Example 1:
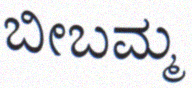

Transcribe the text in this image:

ಬೀಬಮ್ಮ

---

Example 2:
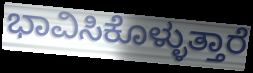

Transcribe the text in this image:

ಭಾವಿಸಿಕೊಳ್ಳುತ್ತಾರೆ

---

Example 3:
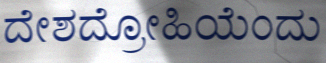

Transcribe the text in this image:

ದೇಶದ್ರೋಹಿಯೆಂದು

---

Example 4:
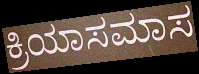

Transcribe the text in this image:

ಕ್ರಿಯಾಸಮಾಸ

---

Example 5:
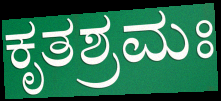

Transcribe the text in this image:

ಕೃತಶ್ರಮಃ